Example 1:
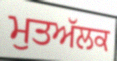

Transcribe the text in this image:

ਮੁਤਅੱਲਕ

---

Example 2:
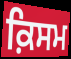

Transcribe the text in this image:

ਕ਼ਿਸਮ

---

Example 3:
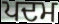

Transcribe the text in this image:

ਪਦਮ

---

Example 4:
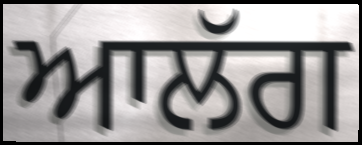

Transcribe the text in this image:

ਆਲੱਗ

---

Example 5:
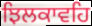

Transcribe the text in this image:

ਝਿਲਕਾਵਹਿ